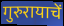
गुरुरायाचें